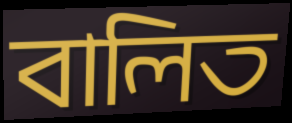
বালিত